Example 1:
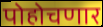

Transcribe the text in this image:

पोहोचणार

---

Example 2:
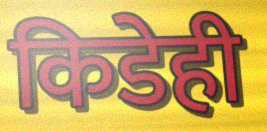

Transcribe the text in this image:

किडेही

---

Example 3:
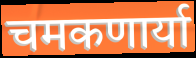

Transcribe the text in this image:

चमकणार्या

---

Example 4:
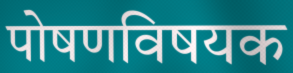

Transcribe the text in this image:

पोषणविषयक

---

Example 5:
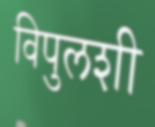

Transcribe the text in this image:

विपुलशी